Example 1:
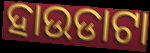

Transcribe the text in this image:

ହାଉଡାଟା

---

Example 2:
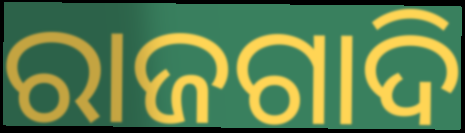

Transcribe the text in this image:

ରାଜଗାଦି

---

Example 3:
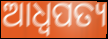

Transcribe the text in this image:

ଆଧ୍ଵପତ୍ୟ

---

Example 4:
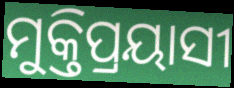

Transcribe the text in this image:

ମୁକ୍ତିପ୍ରୟାସୀ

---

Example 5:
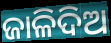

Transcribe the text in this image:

ଜାଳିଦିଅ